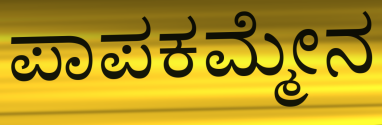
ಪಾಪಕಮ್ಮೇನ